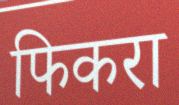
फिकरा